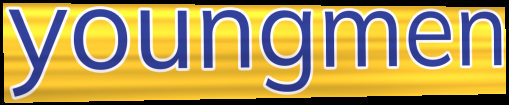
youngmen